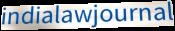
indialawjournal